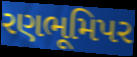
રણભૂમિપર